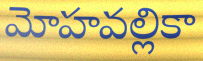
మోహవల్లికా